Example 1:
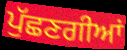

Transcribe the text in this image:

ਪੁੱਛਣਗੀਆਂ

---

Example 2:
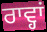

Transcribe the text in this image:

ਰਾਵ੍ਹਾਂ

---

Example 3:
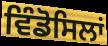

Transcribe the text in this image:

ਵਿੰਡੋਸਿਲਾਂ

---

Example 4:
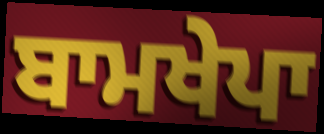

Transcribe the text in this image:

ਬਾਮਖੇਪਾ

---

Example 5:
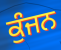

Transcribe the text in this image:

ਕੁੰਜਨ